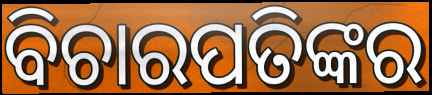
ବିଚାରପତିଙ୍କର